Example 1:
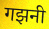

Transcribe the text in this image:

गझनी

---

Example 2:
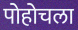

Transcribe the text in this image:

पोहोचला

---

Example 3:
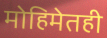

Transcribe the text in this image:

मोहिमेतही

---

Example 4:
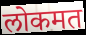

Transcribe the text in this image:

लोकमत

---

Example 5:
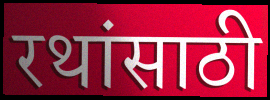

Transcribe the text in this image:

रथांसाठी